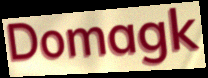
Domagk